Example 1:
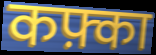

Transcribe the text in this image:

कफ़्का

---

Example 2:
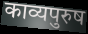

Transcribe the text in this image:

काव्यपुरुष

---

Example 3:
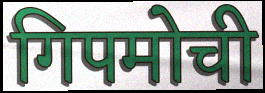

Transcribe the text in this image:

गिपमोची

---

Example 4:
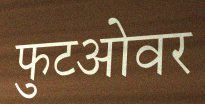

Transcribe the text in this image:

फुटओवर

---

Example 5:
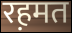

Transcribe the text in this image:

रह़मत